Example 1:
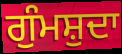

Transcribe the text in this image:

ਗੁੰਮਸ਼ੁਦਾ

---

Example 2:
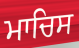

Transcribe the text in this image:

ਮਾਚਿਸ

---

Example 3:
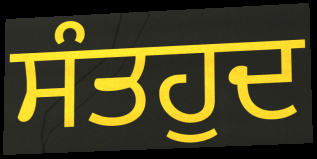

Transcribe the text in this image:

ਸੰਤਹੁਦ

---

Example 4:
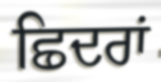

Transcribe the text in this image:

ਛਿਦਰਾਂ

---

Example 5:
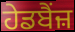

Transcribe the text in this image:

ਹੇਡਬੈਂਜ਼